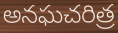
అనఘచరిత్ర